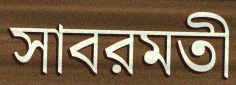
সাবরমতী